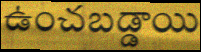
ఉంచబడ్డాయి